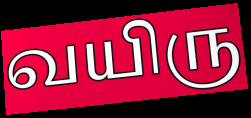
வயிரு